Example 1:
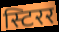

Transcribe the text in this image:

स्टिरर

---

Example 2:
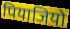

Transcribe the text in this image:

पियाजियो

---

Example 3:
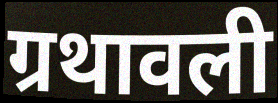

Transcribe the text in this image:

ग्रथावली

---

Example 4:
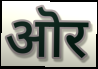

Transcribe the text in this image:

ऒर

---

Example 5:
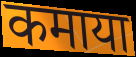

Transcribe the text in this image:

कमाया